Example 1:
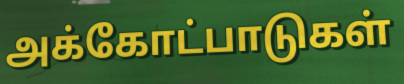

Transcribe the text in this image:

அக்கோட்பாடுகள்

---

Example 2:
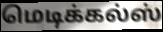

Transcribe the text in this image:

மெடிக்கல்ஸ்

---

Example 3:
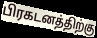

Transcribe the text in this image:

பிரகடனத்திற்கு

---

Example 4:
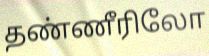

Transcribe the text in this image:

தண்ணீரிலோ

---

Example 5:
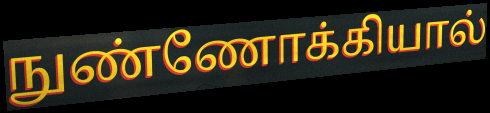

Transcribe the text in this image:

நுண்ணோக்கியால்